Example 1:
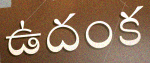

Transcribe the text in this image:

ఉదంక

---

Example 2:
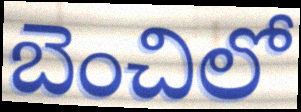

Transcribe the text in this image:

బెంచిలో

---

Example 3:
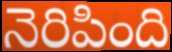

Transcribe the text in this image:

నెరిపింది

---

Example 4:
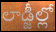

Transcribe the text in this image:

లాడ్జీల్లో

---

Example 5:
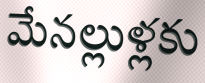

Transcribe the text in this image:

మేనల్లుళ్లకు